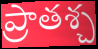
ప్రాతశ్చ